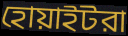
হোয়াইটরা